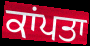
ਕਾਂਪਤਾ